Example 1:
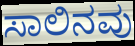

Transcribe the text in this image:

ಸಾಲಿನವು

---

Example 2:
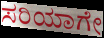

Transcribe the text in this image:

ಸರಿಯಾಗೇ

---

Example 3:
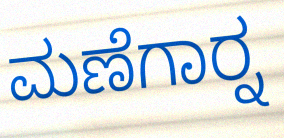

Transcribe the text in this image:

ಮಣೆಗಾರ್‍ನ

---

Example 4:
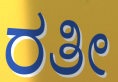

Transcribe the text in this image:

ರತೀ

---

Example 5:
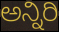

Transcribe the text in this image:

ಅನ್ನಿರಿ